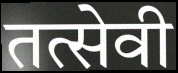
तत्सेवी